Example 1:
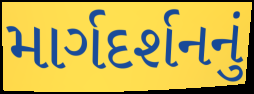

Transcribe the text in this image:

માર્ગદર્શનનું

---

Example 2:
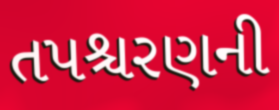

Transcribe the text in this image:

તપશ્ચરણની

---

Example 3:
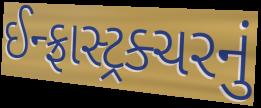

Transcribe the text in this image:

ઈન્ફ્રાસ્ટ્રક્ચરનું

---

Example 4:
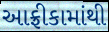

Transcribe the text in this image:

આફ્રીકામાંથી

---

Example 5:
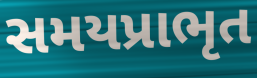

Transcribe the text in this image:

સમયપ્રાભૃત